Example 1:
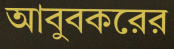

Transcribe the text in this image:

আবুবকরের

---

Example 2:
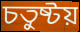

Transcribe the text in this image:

চতুষ্টয়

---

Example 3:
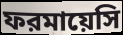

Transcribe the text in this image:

ফরমায়েসি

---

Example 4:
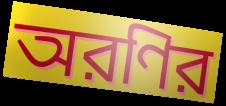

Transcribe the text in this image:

অরণির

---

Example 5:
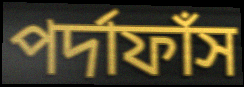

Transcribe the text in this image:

পর্দাফাঁস